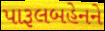
પારૂલબહેનને